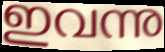
ഇവന്നു